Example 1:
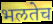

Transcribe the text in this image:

भलतेच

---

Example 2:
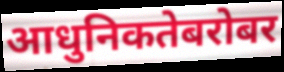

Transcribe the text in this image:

आधुनिकतेबरोबर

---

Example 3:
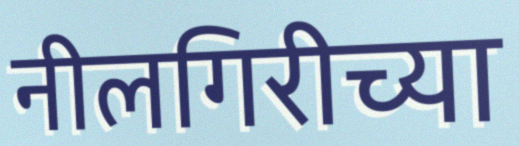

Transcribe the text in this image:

नीलगिरीच्या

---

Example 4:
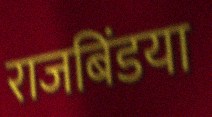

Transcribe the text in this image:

राजबिंडया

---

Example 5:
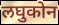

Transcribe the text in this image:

लघुकोन